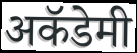
अकॅडेमी